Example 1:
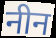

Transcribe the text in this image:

नीन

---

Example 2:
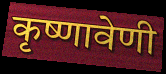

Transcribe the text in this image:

कृष्णावेणी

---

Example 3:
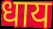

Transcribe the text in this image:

धाय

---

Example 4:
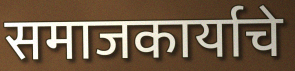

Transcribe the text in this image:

समाजकार्याचे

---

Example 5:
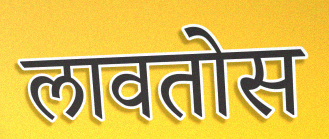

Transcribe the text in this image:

लावतोस